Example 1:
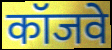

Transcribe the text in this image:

कॉजवे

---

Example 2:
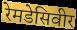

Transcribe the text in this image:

रेमडेसिवीर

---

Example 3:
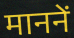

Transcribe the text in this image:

माननें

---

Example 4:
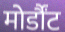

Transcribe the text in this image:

मोर्डौंट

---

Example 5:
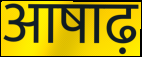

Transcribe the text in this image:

आषाढ़